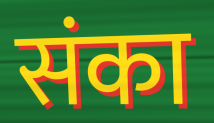
संका